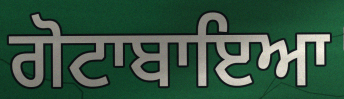
ਗੋਟਾਬਾਇਆ